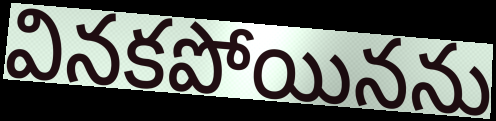
వినకపోయినను